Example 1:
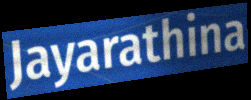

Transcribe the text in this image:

Jayarathina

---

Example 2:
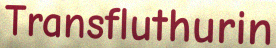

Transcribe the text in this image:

Transfluthurin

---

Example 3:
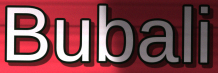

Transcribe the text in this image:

Bubali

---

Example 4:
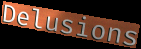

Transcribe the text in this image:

Delusions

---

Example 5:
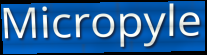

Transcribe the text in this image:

Micropyle